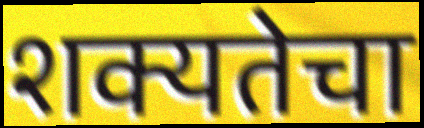
शक्यतेचा